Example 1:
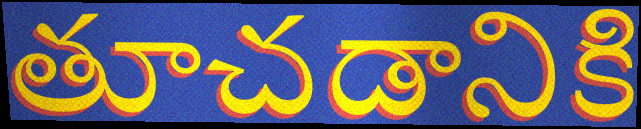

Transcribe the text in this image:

తూచడానికి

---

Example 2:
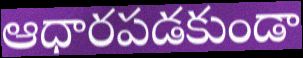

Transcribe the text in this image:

ఆధారపడకుండా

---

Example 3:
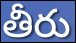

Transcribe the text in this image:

తీరు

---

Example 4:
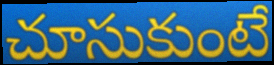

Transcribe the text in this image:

చూసుకుంటే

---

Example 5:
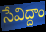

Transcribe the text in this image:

సేవిద్దాం